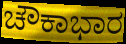
ಚೌಕಾಭಾರ